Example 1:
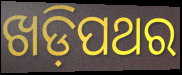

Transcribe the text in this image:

ଖଡ଼ିପଥର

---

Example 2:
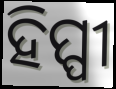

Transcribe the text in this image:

ହିପ୍ପୀ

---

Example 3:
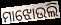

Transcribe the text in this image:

ମାଝୋଉଲି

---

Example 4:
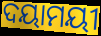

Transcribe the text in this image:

ଦୟାମୟୀ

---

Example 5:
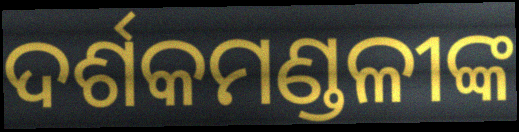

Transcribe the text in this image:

ଦର୍ଶକମଣ୍ଡଳୀଙ୍କ